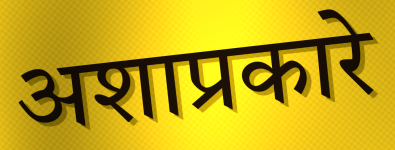
अशाप्रकारे